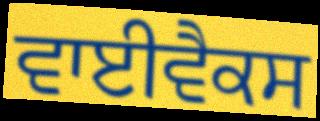
ਵਾਈਵੈਕਸ